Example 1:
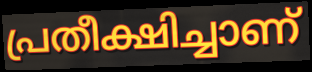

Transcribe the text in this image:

പ്രതീക്ഷിച്ചാണ്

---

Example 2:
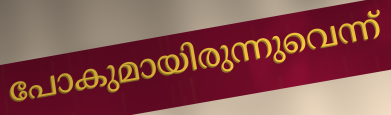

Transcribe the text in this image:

പോകുമായിരുന്നുവെന്ന്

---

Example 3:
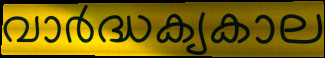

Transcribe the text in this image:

വാർദ്ധക്യകാല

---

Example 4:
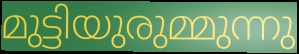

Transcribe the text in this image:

മുട്ടിയുരുമ്മുന്നു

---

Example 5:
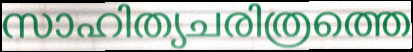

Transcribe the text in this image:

സാഹിത്യചരിത്രത്തെ